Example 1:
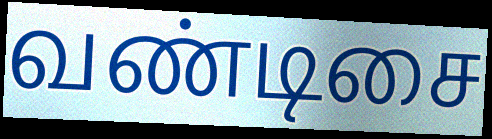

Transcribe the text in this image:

வண்டிசை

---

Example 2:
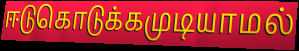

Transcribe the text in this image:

ஈடுகொடுக்கமுடியாமல்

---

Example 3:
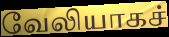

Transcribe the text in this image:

வேலியாகச்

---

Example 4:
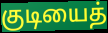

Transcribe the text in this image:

குடியைத்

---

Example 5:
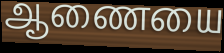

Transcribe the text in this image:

ஆணையை